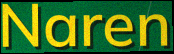
Naren